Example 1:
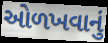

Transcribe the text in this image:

ઓળખવાનું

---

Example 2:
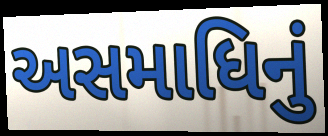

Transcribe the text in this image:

અસમાધિનું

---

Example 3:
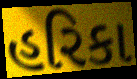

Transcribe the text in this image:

હરિકા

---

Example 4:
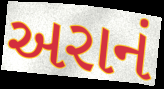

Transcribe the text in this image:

અરાનં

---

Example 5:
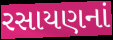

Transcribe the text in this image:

રસાયણનાં